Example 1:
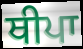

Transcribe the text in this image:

ਥੀਪਾ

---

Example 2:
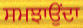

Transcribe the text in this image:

ਸਮਝਾਉਂਦਾ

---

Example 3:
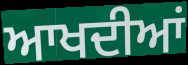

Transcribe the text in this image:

ਆਖਦੀਆਂ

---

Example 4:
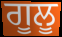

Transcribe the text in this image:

ਗੂਲੂ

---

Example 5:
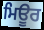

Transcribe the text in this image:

ਮਿਊਰ